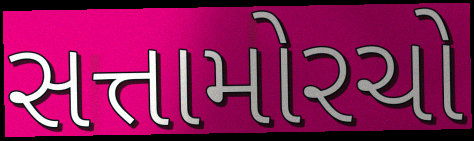
સત્તામોરચો